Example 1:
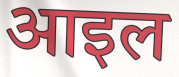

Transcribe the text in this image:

आइल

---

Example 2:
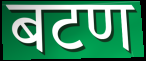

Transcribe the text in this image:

बटण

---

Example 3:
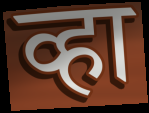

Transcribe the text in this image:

व्हा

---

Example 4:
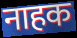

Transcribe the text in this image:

नाहक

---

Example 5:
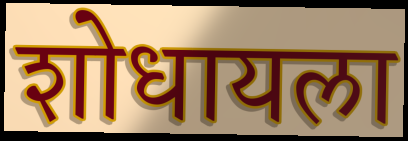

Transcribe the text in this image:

शोधायला